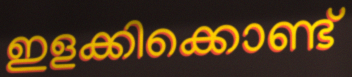
ഇളക്കിക്കൊണ്ട്